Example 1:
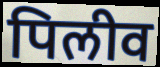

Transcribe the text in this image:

पिलीव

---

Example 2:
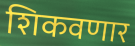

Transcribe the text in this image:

शिकवणार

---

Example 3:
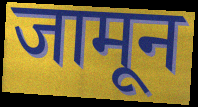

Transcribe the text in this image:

जामून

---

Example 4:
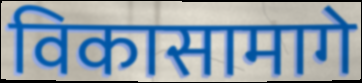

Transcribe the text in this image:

विकासामागे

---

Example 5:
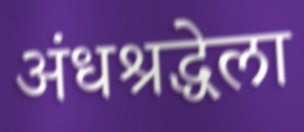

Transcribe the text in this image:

अंधश्रद्धेला